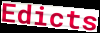
Edicts